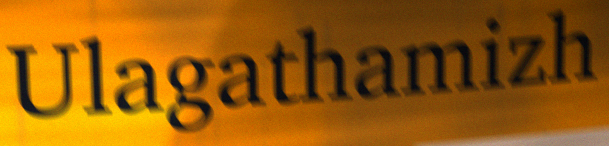
Ulagathamizh